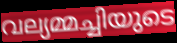
വല്യമ്മച്ചിയുടെ